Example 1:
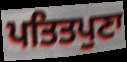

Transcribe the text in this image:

ਪਤਿਤਪੁਣਾ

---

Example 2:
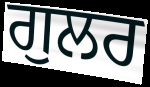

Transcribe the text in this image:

ਗੁਲਰ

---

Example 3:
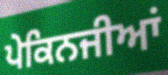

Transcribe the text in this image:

ਪੇਕਿਨਜੀਆਂ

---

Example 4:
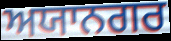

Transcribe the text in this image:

ਅਯਾਨਗਰ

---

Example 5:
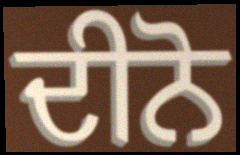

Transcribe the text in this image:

ਦੀਨੋ